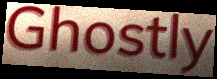
Ghostly